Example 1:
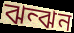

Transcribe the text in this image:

ঝন্ঝন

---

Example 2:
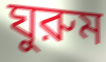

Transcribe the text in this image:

ঘুরুম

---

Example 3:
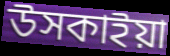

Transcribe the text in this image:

উসকাইয়া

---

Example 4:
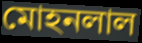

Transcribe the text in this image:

মোহনলাল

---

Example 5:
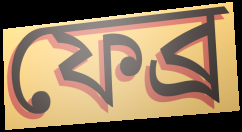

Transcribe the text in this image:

ফেব্র